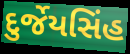
દુર્જેયસિંહ